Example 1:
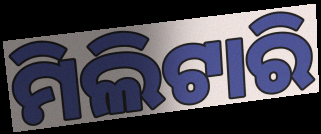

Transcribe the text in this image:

ମିଲିଟାରି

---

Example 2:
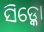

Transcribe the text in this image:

ସିଡ୍କୋ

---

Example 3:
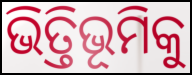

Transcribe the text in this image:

ଭିତ୍ତିଭୂମିକୁ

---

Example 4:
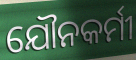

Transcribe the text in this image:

ଯୌନକର୍ମୀ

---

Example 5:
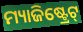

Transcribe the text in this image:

ମ୍ୟାଜିଷ୍ଟ୍ରେଟ୍